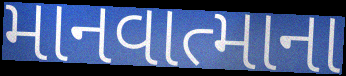
માનવાત્માના